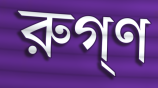
রুগ্ণ